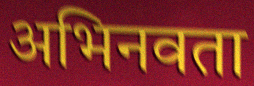
अभिनवता